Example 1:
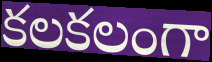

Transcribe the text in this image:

కలకలంగా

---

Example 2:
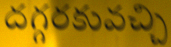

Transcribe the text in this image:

దగ్గరకువచ్చి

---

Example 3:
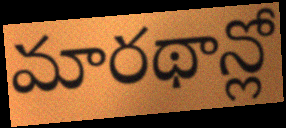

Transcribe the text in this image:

మారథాన్లో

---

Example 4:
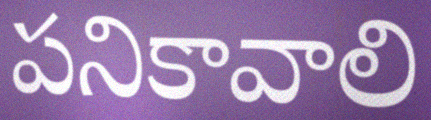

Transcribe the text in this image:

పనికావాలి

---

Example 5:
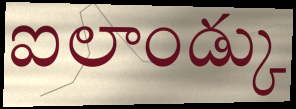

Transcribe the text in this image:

ఐలాండ్కు